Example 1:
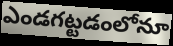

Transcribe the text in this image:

ఎండగట్టడంలోనూ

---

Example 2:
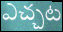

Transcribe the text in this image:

ఎచ్చట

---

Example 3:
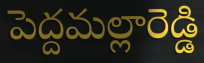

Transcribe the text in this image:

పెద్దమల్లారెడ్డి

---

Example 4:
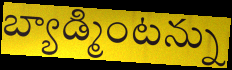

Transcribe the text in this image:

బ్యాడ్మింటన్ను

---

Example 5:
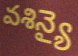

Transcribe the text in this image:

వశిన్యై